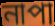
নাপা